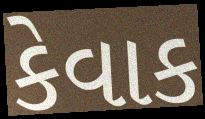
કેવાક